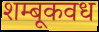
शम्बूकवध